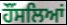
ਹੌਂਸਲਿਆਂ